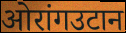
ओरांगउटान